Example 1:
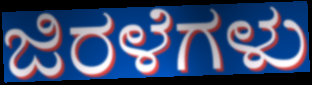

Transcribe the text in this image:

ಜಿರಳೆಗಳು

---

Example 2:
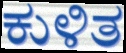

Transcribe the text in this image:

ಕುಳಿತ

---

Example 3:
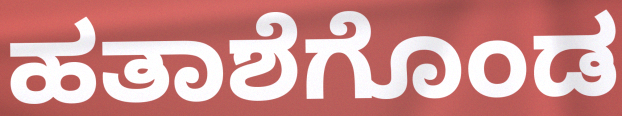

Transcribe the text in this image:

ಹತಾಶೆಗೊಂಡ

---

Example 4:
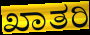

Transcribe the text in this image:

ಖಾತರಿ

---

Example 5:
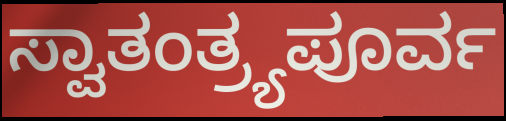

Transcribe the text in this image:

ಸ್ವಾತಂತ್ರ್ಯಪೂರ್ವ